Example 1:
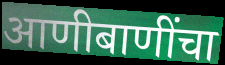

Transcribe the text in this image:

आणीबाणींचा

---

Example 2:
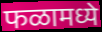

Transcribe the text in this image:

फळामध्ये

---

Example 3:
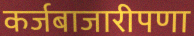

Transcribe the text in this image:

कर्जबाजारीपणा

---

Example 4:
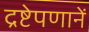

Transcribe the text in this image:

द्रष्टेपणानें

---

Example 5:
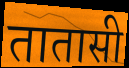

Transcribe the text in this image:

तातासी